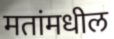
मतांमधील